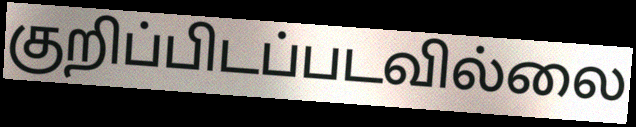
குறிப்பிடப்படவில்லை